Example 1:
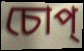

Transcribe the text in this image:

চোপ্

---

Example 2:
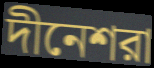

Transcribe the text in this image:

দীনেশরা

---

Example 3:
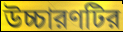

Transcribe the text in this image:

উচ্চারণটির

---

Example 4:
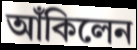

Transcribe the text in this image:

আঁকিলেন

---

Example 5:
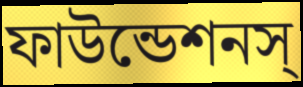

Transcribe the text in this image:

ফাউন্ডেশনস্